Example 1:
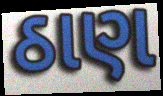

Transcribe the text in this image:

ઠાણ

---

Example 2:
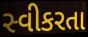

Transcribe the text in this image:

સ્વીકરતા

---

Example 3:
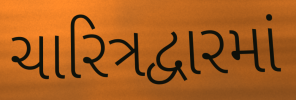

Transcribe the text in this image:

ચારિત્રદ્વારમાં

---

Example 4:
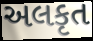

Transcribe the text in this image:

અલકૃત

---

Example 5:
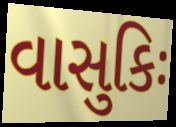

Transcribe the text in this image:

વાસુકિઃ